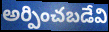
అర్పించబడేవి